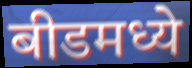
बीडमध्ये